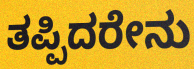
ತಪ್ಪಿದರೇನು